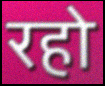
रहो